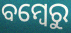
ବମ୍ବେରୁ